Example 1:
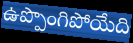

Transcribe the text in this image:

ఉప్పొంగిపోయేది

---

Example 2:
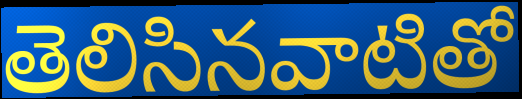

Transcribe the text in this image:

తెలిసినవాటితో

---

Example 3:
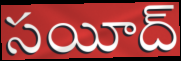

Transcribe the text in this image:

సయీద్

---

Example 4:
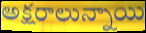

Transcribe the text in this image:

అక్షరాలున్నాయి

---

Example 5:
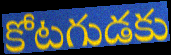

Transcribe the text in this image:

కోటగుడకు